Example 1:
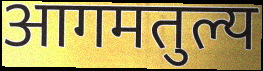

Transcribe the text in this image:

आगमतुल्य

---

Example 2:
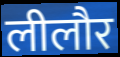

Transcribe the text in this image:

लीलौर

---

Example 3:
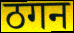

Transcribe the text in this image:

ठगन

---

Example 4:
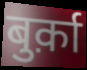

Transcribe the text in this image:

बुर्क़ा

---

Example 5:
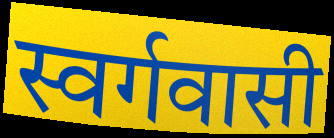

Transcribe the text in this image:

स्वर्गवासी